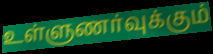
உள்ளுணர்வுக்கும்